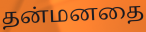
தன்மனதை